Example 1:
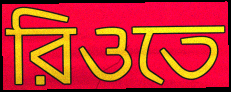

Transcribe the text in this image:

রিওতে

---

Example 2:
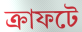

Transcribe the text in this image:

ক্রাফটে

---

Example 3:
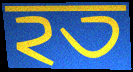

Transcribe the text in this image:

হত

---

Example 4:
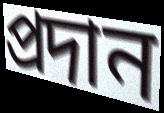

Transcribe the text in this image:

প্রদান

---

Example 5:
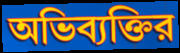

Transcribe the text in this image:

অভিব্যক্তির